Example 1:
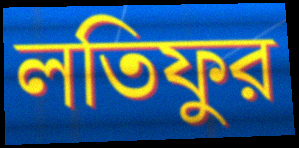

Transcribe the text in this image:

লতিফুর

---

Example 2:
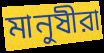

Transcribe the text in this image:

মানুষীরা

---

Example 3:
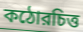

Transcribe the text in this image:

কঠোরচিত্ত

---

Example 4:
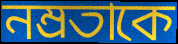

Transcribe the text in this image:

নম্রতাকে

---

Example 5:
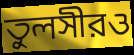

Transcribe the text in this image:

তুলসীরও